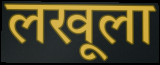
लखूला